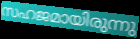
സഹജമായിരുന്നു